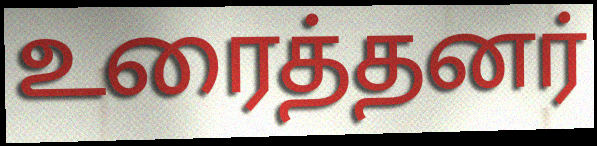
உரைத்தனர்